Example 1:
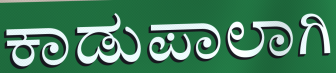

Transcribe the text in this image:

ಕಾಡುಪಾಲಾಗಿ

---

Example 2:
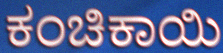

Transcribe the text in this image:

ಕಂಚಿಕಾಯಿ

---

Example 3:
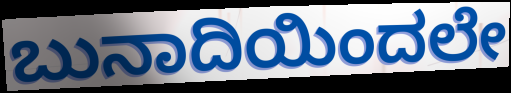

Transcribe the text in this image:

ಬುನಾದಿಯಿಂದಲೇ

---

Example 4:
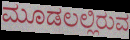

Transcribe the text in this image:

ಮೂಡಲಲ್ಲಿರುವ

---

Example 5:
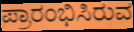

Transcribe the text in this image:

ಪ್ರಾರಂಭಿಸಿರುವ